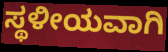
ಸ್ಥಳೀಯವಾಗಿ